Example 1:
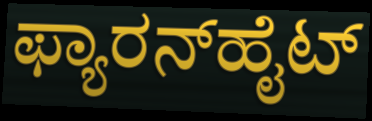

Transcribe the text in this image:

ಫ್ಯಾರನ್‌ಹೈಟ್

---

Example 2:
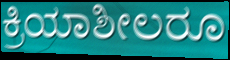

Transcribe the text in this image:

ಕ್ರಿಯಾಶೀಲರೂ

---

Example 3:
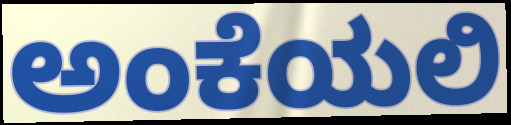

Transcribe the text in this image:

ಅಂಕೆಯಲಿ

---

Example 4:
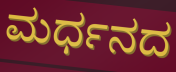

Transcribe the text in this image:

ಮರ್ಧನದ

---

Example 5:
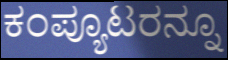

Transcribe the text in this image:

ಕಂಪ್ಯೂಟರನ್ನೂ